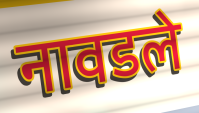
नावडले